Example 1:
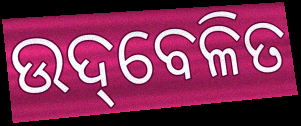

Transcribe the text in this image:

ଉଦ୍‌ବେଳିତ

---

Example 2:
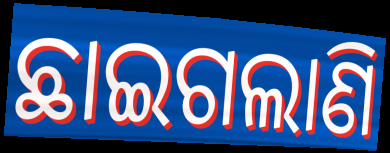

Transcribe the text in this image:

ଛାଇଗଲାଣି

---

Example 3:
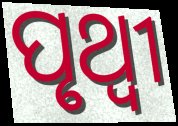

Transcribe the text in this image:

ପୃଥ୍ଵୀ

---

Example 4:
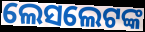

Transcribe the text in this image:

ଲେସଲେଟଙ୍କ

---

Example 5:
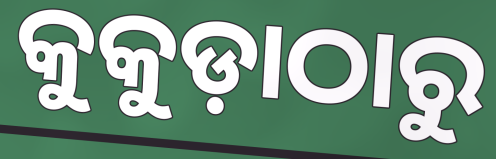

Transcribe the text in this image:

କୁକୁଡ଼ାଠାରୁ